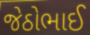
જેઠોભાઈ